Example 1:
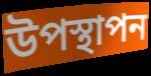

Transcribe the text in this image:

উপস্থাপন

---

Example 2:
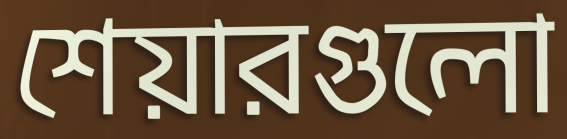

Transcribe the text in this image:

শেয়ারগুলো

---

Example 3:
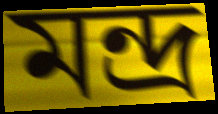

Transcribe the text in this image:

মন্দ্র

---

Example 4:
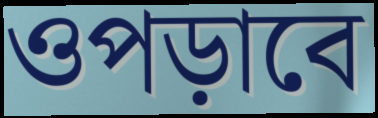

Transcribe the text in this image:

ওপড়াবে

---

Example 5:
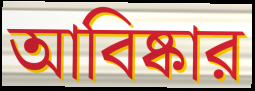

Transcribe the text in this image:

আবিষ্কার